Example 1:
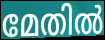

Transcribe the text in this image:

മേതിൽ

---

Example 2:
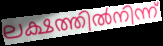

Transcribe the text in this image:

ലക്ഷത്തിൽനിന്ന്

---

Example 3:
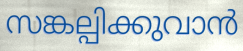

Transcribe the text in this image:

സങ്കല്പിക്കുവാൻ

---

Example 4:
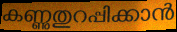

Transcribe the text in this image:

കണ്ണുതുറപ്പിക്കാൻ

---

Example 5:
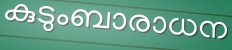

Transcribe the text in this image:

കുടുംബാരാധന